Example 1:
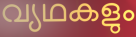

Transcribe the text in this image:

വ്യഥകളും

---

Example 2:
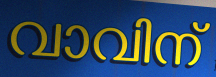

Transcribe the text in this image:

വാവിന്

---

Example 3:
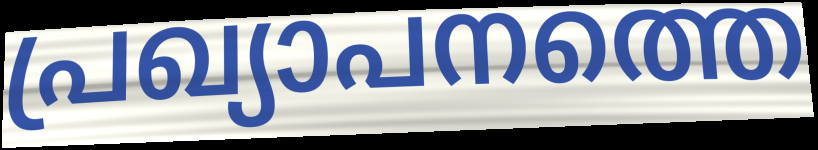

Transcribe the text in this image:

പ്രഖ്യാപനത്തെ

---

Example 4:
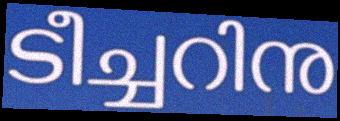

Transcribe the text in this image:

ടീച്ചറിനു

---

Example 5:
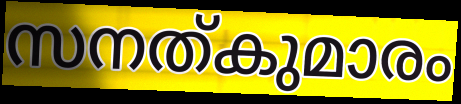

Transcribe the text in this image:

സനത്കുമാരം